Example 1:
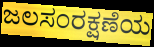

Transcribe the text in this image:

ಜಲಸಂರಕ್ಷಣೆಯ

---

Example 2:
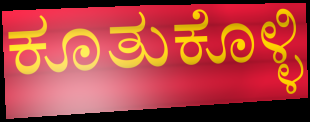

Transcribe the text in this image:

ಕೂತುಕೊಳ್ಳಿ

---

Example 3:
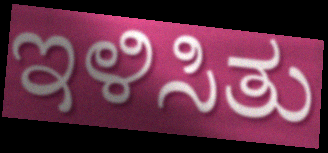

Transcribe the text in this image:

ಇಳಿಸಿತು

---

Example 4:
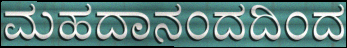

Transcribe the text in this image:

ಮಹದಾನಂದದಿಂದ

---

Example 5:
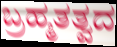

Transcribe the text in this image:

ಬ್ರಹ್ಮತತ್ವದ